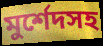
মুর্শেদসহ